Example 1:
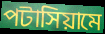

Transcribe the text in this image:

পটাসিয়ামে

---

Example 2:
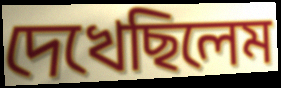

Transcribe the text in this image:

দেখেছিলেম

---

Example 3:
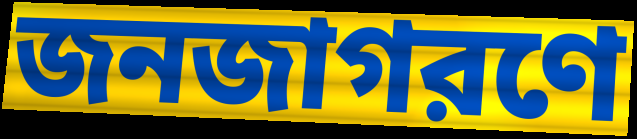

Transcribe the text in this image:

জনজাগরণে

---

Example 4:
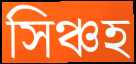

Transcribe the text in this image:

সিঞ্চহ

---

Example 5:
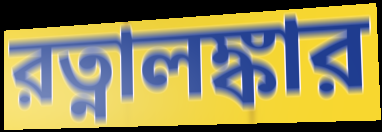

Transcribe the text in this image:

রত্নালঙ্কার